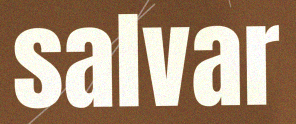
salvar